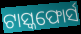
ଟାସ୍କଫୋର୍ସ